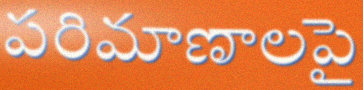
పరిమాణాలపై